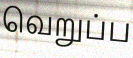
வெறுப்ப